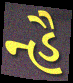
ન્હૈ